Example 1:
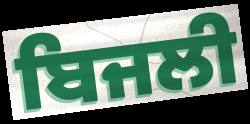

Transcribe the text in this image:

ਬਿਜਲੀ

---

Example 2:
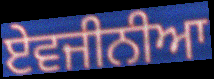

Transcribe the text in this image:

ਏਵਜੀਨੀਆ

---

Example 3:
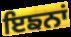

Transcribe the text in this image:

ਇਙਨਾਂ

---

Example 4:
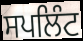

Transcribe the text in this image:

ਸਪਲਿੰਟ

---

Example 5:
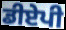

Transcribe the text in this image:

ਡੀਏਪੀ